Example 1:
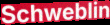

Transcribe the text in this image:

Schweblin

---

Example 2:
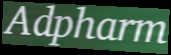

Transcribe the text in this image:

Adpharm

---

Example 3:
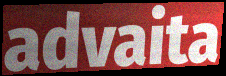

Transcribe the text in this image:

advaita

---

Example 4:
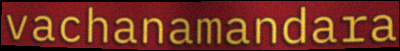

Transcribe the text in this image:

vachanamandara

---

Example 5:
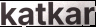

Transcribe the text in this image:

katkar